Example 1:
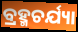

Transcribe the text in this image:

ବ୍ରହ୍ମଚର୍ଯ୍ୟା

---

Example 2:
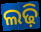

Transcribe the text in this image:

ଲଢ଼ି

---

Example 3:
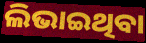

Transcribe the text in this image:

ଲିଭାଇଥିବା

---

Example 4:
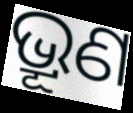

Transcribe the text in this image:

ଭ୍ରୂଣ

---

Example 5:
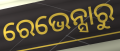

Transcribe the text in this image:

ରେଭେନ୍ସାରୁ